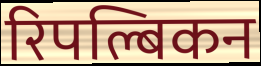
रिपल्बिकन